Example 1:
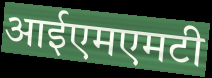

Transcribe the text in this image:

आईएमएमटी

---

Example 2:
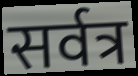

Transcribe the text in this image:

सर्वत्र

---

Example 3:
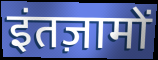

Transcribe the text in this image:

इंतज़ामों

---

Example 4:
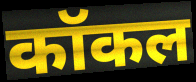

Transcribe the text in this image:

कॉकल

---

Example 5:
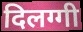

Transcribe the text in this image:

दिलग्गी